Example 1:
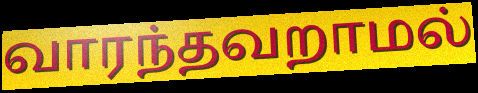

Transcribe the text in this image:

வாரந்தவறாமல்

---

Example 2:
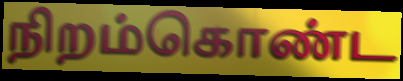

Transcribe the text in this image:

நிறம்கொண்ட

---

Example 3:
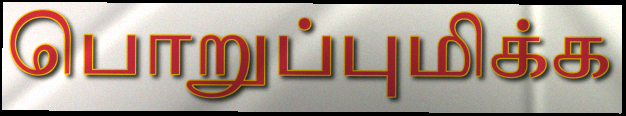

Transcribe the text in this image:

பொறுப்புமிக்க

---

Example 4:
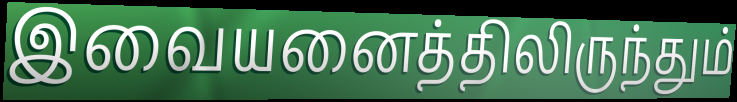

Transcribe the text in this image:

இவையனைத்திலிருந்தும்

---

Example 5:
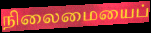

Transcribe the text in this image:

நிலைமையைப்